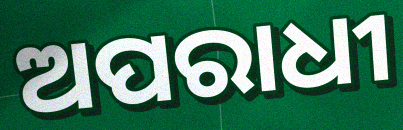
ଅପରାଧୀ